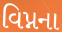
વિપ્નના